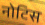
नोटिस